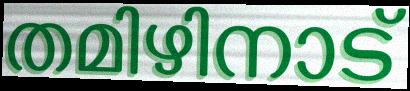
തമിഴിനാട്